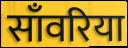
साँवरिया